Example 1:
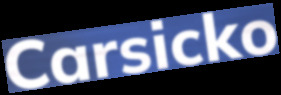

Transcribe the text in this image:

Carsicko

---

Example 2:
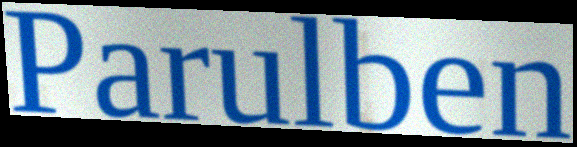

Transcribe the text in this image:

Parulben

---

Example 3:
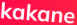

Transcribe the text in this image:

kakane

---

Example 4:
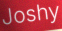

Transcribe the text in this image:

Joshy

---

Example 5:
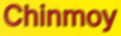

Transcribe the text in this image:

Chinmoy